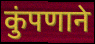
कुंपणाने